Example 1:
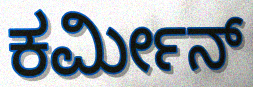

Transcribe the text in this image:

ಕರ್ಮೀನ್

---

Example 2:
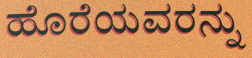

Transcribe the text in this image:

ಹೊರೆಯವರನ್ನು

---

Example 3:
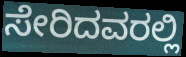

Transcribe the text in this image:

ಸೇರಿದವರಲ್ಲಿ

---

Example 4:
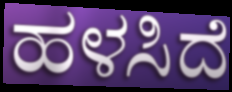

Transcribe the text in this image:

ಹಳಸಿದೆ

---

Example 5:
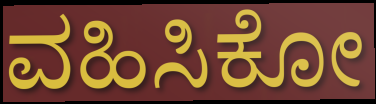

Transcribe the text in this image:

ವಹಿಸಿಕೋ